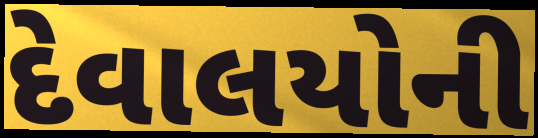
દેવાલયોની